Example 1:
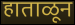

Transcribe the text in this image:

हाताळून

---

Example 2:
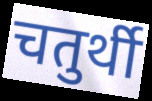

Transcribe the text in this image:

चतुर्थी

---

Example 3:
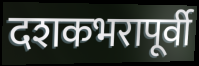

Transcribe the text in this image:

दशकभरापूर्वी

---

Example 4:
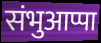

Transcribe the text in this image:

संभुआप्पा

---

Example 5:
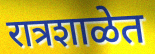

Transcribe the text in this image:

रात्रशाळेत